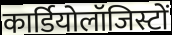
कार्डियोलॉजिस्टों